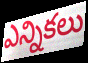
ఎన్నికలు